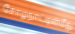
சோழநாட்டின்மீது